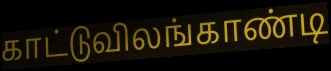
காட்டுவிலங்காண்டி